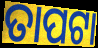
ତାପଟା